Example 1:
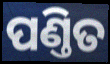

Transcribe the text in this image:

ପଣ୍ତିତ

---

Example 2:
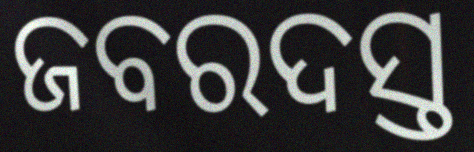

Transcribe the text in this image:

ଜବରଦସ୍ତ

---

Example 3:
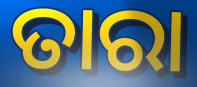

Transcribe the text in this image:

ତାରା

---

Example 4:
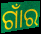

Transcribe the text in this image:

ଗାଁର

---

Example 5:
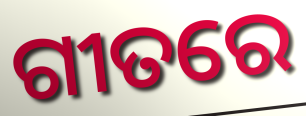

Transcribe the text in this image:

ଗୀତରେ